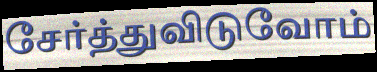
சேர்த்துவிடுவோம்